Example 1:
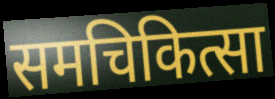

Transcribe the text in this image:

समचिकित्सा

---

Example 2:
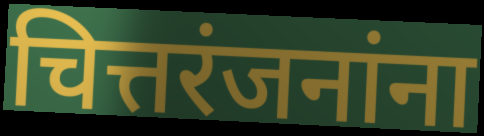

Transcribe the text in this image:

चित्तरंजनांना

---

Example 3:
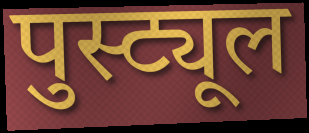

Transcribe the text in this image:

पुस्ट्यूल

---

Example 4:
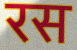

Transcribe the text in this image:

रस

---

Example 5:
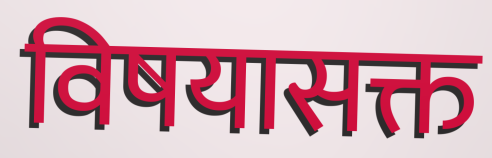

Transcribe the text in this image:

विषयासक्त